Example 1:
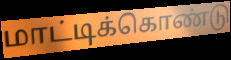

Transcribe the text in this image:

மாட்டிக்கொண்டு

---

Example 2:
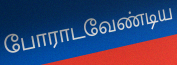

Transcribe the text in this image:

போராடவேண்டிய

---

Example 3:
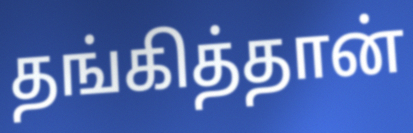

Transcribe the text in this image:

தங்கித்தான்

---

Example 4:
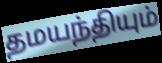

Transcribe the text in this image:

தமயந்தியும்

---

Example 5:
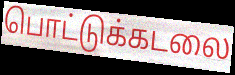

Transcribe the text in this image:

பொட்டுக்கடலை